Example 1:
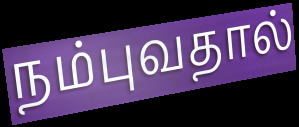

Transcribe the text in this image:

நம்புவதால்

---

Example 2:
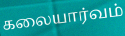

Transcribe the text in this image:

கலையார்வம்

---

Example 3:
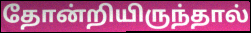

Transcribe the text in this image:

தோன்றியிருந்தால்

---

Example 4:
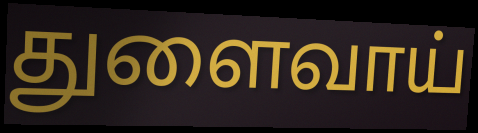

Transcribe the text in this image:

துளைவாய்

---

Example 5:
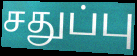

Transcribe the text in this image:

சதுப்பு